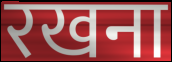
रखना